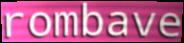
rombave